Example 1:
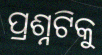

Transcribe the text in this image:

ପ୍ରଶ୍ନଟିକୁ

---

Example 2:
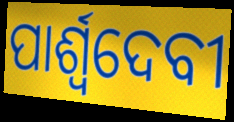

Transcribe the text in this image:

ପାର୍ଶ୍ୱଦେବୀ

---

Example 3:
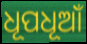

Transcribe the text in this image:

ଧୂପଧୂଆଁ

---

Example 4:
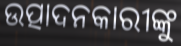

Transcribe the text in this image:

ଉତ୍ପାଦନକାରୀଙ୍କୁ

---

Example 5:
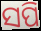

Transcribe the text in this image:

ସପି